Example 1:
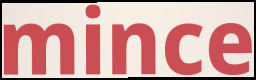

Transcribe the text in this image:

mince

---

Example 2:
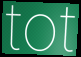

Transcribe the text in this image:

tot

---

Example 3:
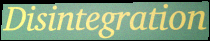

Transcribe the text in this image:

Disintegration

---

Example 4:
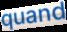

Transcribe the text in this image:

quand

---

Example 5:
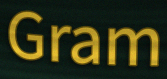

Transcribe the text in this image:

Gram